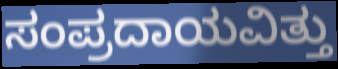
ಸಂಪ್ರದಾಯವಿತ್ತು